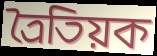
ত্ৰৈতিয়ক